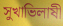
সুখাভিলাষী